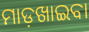
ମାଡ଼ଖାଇବା